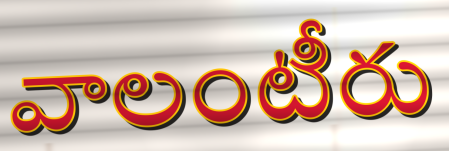
వాలంటీరు